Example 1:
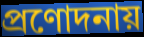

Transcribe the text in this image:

প্রণোদনায়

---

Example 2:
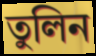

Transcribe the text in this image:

তুলিন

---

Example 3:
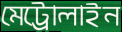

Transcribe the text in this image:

মেট্রোলাইন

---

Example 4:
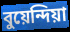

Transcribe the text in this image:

বুয়েন্দিয়া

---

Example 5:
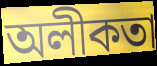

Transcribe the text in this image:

অলীকতা